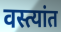
वस्त्यांत